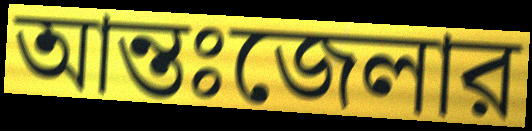
আন্তঃজেলার